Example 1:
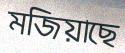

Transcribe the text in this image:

মজিয়াছে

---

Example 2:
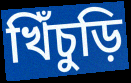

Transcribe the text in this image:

খিঁচুড়ি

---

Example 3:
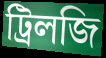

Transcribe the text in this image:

ট্রিলজি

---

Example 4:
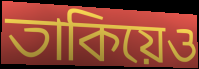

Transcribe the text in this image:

তাকিয়েও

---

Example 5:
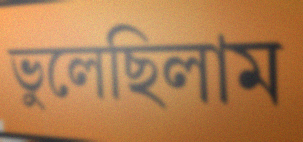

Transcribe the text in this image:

ভুলেছিলাম